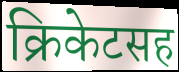
क्रिकेटसह